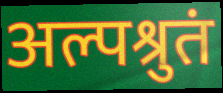
अल्पश्रुतं